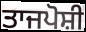
ਤਾਜਪੋਸ਼ੀ